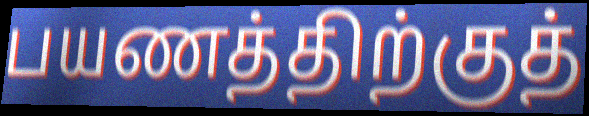
பயணத்திற்குத்